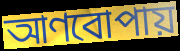
আণবোপায়